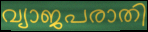
വ്യാജപരാതി